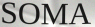
SOMA